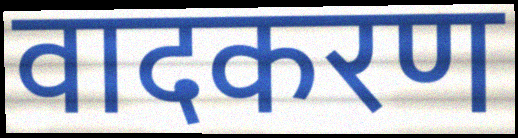
वादकरण